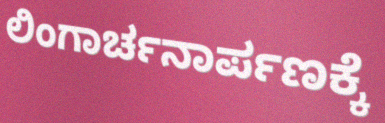
ಲಿಂಗಾರ್ಚನಾರ್ಪಣಕ್ಕೆ